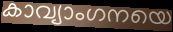
കാവ്യാംഗനയെ